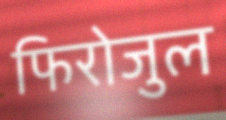
फिरोजुल